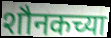
शौनकच्या